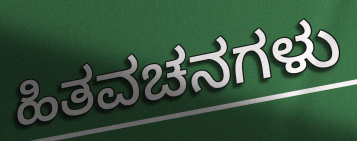
ಹಿತವಚನಗಳು